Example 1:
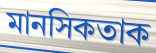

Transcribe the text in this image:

মানসিকতাক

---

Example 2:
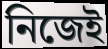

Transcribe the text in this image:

নিজেই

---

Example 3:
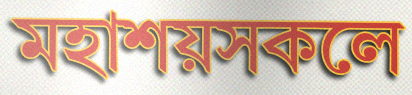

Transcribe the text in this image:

মহাশয়সকলে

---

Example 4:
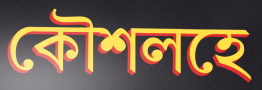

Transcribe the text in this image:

কৌশলহে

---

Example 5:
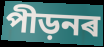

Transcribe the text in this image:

পীড়নৰ